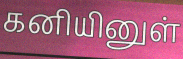
கனியினுள்